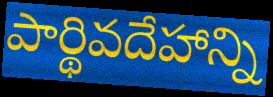
పార్థివదేహాన్ని